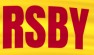
RSBY